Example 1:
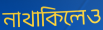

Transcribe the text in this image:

নাথাকিলেও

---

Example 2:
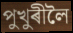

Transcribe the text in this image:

পুখুৰীলৈ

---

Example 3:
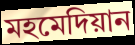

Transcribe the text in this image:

মহমেদিয়ান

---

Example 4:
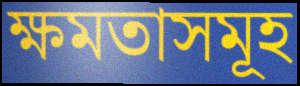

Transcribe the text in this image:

ক্ষমতাসমূহ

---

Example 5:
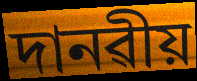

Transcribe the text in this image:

দানৱীয়